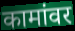
कामांवर